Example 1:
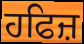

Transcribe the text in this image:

ਹਫਿਜ਼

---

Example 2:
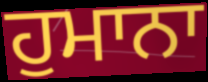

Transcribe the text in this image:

ਹੁਮਾਨਾ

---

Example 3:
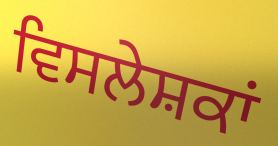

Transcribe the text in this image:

ਵਿਸਲੇਸ਼ਕਾਂ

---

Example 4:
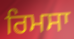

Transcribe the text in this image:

ਰਿਮਸਾ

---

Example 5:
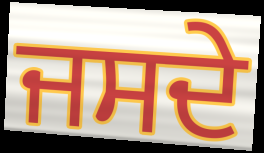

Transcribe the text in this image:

ਜਸਦੇ